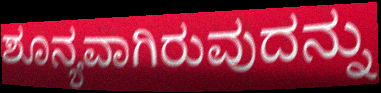
ಶೂನ್ಯವಾಗಿರುವುದನ್ನು